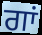
ਗਾਂ